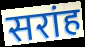
सरांह